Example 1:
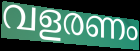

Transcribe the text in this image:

വളരണം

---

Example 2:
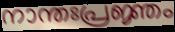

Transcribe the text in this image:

നാന്തഃപ്രജ്ഞം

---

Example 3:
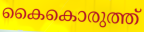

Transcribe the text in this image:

കൈകൊരുത്ത്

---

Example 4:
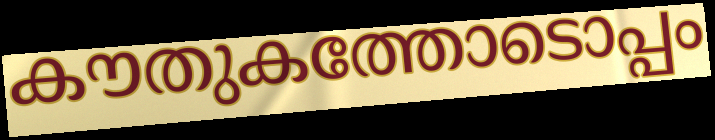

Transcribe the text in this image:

കൗതുകത്തോടൊപ്പം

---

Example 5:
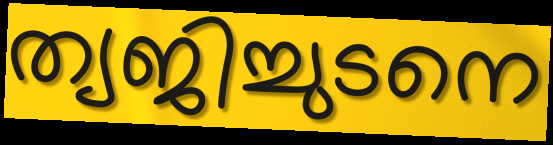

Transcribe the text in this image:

ത്യജിച്ചുടനെ